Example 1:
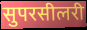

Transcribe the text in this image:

सुपरसीलरी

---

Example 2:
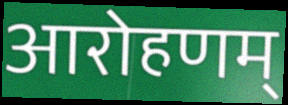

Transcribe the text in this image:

आरोहणम्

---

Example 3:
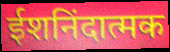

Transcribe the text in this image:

ईशनिंदात्मक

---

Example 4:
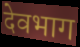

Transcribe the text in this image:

देवभाग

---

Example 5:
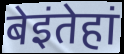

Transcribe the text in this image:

बेइंतेहां